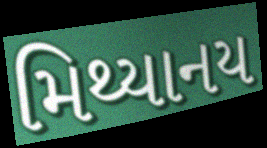
મિથ્યાનય